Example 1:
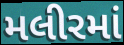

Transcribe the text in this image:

મલીરમાં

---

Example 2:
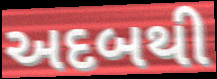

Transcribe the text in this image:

અદબથી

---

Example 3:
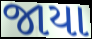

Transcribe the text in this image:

જાયા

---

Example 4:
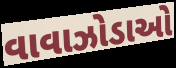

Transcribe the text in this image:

વાવાઝોડાઓ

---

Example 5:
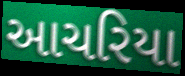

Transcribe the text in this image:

આચરિયા